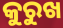
କୁରୁଖ